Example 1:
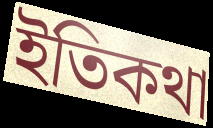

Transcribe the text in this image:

ইতিকথা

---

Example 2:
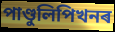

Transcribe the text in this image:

পাণ্ডুলিপিখনৰ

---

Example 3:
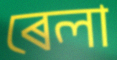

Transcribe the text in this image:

ৰেলা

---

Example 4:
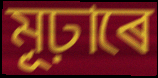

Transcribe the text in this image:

মূঢ়াৰে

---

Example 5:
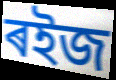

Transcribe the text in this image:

ৰইজ